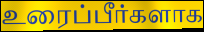
உரைப்பீர்களாக